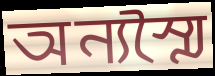
অন্যস্মৈ